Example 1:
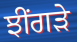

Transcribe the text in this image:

ਝੀਂਗੜੇ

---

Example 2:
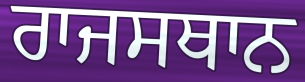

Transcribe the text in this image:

ਰਾਜਸਥਾਨ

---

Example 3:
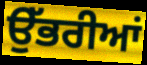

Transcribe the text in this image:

ਉੱਭਰੀਆਂ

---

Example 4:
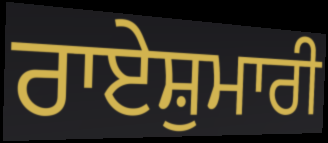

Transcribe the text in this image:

ਰਾਏਸ਼ੁਮਾਰੀ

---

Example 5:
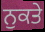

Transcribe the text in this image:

ਨੁਕਤੇ